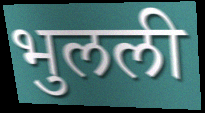
भुलली